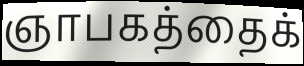
ஞாபகத்தைக்